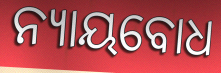
ନ୍ୟାୟବୋଧ